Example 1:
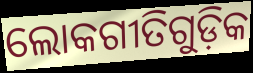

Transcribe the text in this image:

ଲୋକଗୀତିଗୁଡ଼ିକ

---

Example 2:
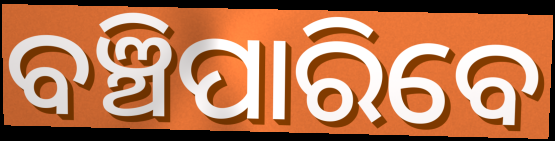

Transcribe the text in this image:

ବଞ୍ଚିପାରିବେ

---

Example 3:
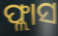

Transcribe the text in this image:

ଫ୍ଲାସ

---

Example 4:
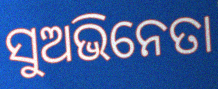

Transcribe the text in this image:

ସୁଅଭିନେତା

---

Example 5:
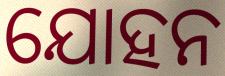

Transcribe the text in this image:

ଯୋହନ